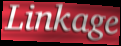
Linkage